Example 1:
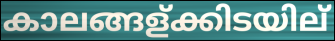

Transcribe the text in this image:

കാലങ്ങള്ക്കിടയില്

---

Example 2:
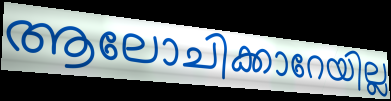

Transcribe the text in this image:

ആലോചിക്കാറേയില്ല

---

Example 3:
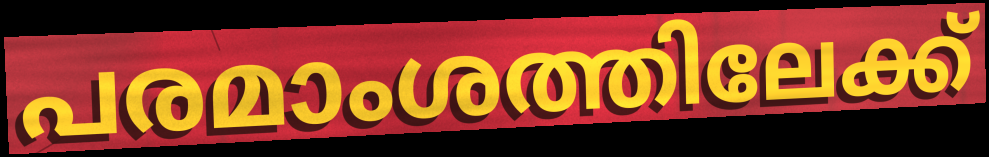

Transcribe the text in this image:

പരമാംശത്തിലേക്ക്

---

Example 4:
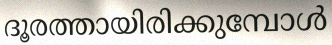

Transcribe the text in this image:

ദൂരത്തായിരിക്കുമ്പോൾ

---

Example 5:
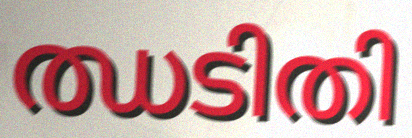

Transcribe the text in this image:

ഝടിതി